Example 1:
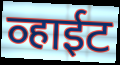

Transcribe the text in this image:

व्हाईट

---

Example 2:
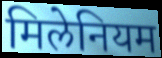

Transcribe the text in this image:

मिलेनियम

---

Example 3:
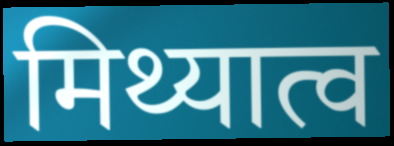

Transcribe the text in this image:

मिथ्यात्व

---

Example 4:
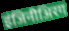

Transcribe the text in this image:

इंजिनीअिरग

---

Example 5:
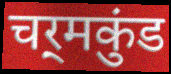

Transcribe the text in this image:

चर्मकुंड